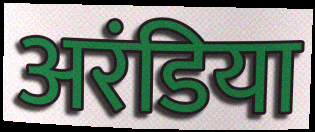
अरंडिया